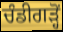
ਚੰਡੀਗੜ੍ਹੋਂ